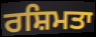
ਰਸ਼ਿਮਤਾ